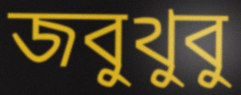
জবুথুবু